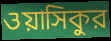
ওয়াসিকুর